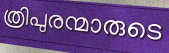
ത്രിപുരന്മാരുടെ